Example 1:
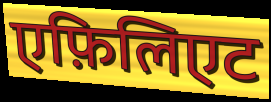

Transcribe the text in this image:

एफ़िलिएट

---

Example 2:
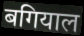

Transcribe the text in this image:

बगियाल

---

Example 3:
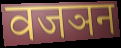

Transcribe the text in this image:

वजञन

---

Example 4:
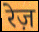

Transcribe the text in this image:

रेज़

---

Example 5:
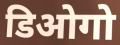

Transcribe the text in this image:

डिओगो